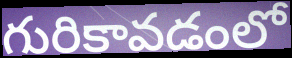
గురికావడంలో